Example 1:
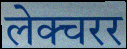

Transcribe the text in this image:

लेक्‍चरर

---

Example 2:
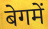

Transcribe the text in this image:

बेगमें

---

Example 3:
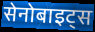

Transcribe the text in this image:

सेनोबाइट्स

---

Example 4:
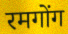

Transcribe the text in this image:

रमगोंग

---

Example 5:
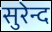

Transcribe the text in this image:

सुरेन्द